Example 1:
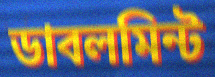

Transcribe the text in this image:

ডাবলমিন্ট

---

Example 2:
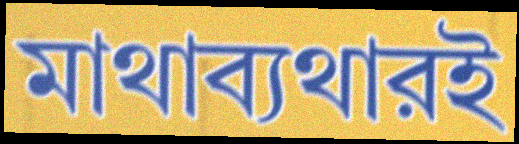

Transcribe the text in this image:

মাথাব্যথারই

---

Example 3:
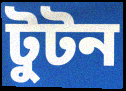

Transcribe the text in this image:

টুটন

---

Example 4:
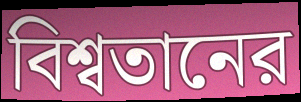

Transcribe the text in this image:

বিশ্বতানের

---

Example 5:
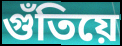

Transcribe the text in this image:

গুঁতিয়ে